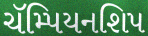
ચૅમ્પિયનશિપ